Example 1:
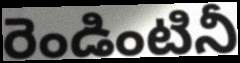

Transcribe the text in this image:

రెండింటినీ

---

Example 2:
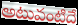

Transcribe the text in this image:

అటువంటిదే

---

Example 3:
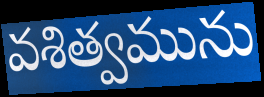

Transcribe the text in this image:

వశిత్వమును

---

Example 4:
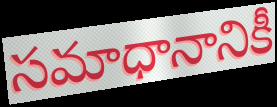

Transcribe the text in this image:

సమాధానానికీ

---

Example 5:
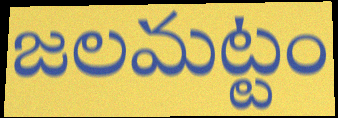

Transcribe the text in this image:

జలమట్టం